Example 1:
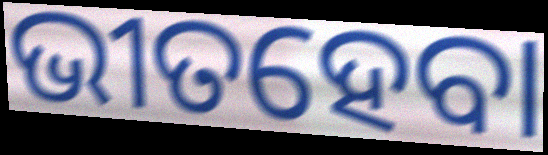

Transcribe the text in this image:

ଭୀତହେବା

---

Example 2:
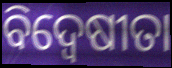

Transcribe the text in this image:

ବିଦ୍ଵେଷୀତା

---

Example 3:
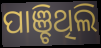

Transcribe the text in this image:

ପାଞ୍ଚିଥିଲି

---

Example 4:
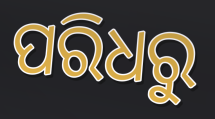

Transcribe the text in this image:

ପରିଧରୁ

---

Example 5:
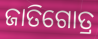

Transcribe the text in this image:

ଜାତିଗୋତ୍ର